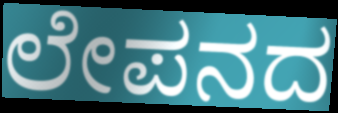
ಲೇಪನದ